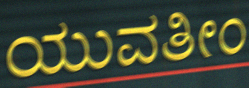
ಯುವತೀಂ